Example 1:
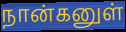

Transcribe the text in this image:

நான்கனுள்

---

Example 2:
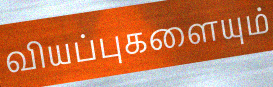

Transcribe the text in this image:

வியப்புகளையும்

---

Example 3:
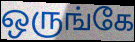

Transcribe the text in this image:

ஒருங்கே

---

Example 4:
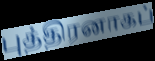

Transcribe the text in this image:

புத்திரனாகப்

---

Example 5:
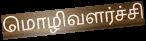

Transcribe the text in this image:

மொழிவளர்ச்சி